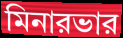
মিনারভার